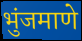
भुंजमाणे